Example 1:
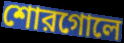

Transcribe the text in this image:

শোরগোলে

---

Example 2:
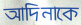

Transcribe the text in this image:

আদিনাকে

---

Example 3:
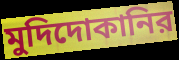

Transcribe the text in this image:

মুদিদোকানির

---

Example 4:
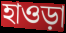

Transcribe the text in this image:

হাওড়া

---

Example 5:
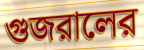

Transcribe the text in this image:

গুজরালের